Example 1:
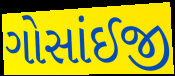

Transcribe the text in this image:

ગોસાંઈજી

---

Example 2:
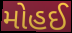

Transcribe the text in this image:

મોહઈ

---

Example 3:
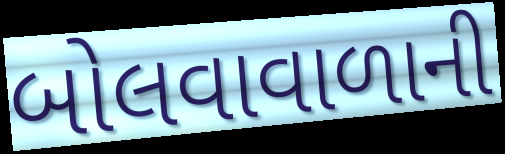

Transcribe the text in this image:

બોલવાવાળાની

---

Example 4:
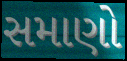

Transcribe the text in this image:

સમાણો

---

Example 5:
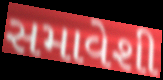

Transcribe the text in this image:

સમાવેશી